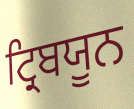
ਟ੍ਰਿਬਯੂਨ